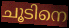
ചൂടിനെ